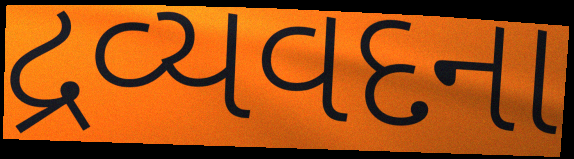
દ્રવ્યવદના